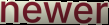
newer